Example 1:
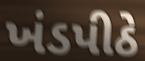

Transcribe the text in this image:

ખંડપીઠે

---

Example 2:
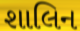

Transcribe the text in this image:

શાલિન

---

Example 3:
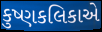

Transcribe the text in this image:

કુષ્ણકલિકાએ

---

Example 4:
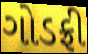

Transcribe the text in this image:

ગોડફ્રી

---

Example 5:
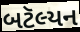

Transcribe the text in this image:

બટૅલ્યન